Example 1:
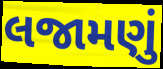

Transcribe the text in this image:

લજામણું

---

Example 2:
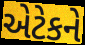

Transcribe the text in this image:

એટેકને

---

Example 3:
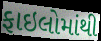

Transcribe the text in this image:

ફાઇલોમાંથી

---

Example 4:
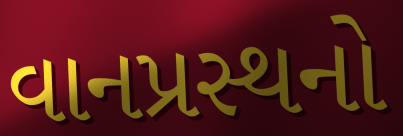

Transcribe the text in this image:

વાનપ્રસ્થનો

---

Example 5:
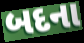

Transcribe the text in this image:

બદના